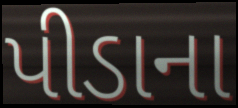
પીડાના